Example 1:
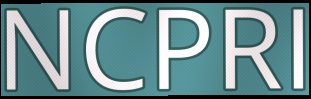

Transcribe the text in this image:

NCPRI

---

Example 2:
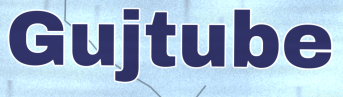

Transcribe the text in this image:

Gujtube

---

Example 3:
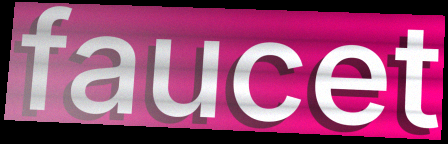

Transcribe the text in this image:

faucet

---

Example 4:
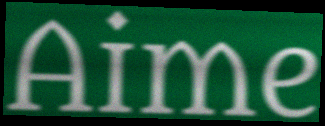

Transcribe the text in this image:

Aime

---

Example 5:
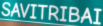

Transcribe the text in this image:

SAVITRIBAI